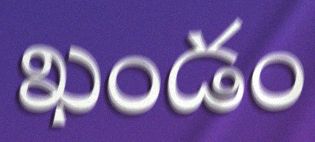
ఖండం